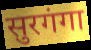
सुरगंगा